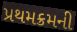
પ્રથમક્રમની